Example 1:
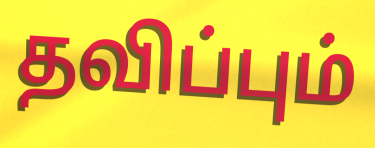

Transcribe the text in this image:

தவிப்பும்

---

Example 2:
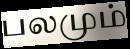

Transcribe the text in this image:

பலமும்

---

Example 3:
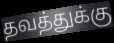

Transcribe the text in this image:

தவத்துக்கு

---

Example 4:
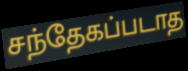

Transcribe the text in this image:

சந்தேகப்படாத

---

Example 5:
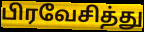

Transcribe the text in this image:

பிரவேசித்து